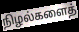
நிழல்களைத்